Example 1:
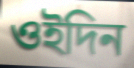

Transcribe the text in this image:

ওইদিন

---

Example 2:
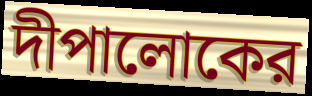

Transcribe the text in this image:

দীপালোকের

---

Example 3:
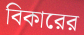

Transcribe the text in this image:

বিকারের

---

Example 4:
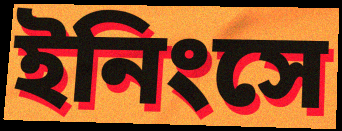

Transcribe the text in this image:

ইনিংসে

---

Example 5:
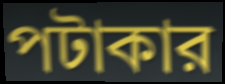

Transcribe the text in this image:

পটাকার